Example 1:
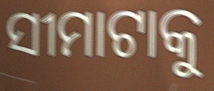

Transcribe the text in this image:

ସୀମାଟାକୁ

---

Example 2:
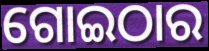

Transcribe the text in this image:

ଗୋଇଠାର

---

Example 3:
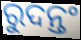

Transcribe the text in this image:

ରୁଦନ୍ତଂ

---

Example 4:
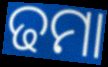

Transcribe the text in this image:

ଢମା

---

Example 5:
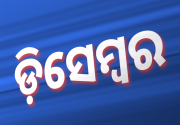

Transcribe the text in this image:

ଡ଼ିସେମ୍ୱର